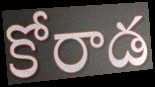
కోరాడ